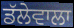
ਡੱਲੇਵਾਲਾ